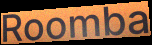
Roomba